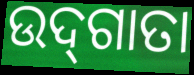
ଉଦ୍‌ଗାତା